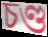
চণ্ড